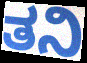
ತನಿ